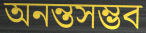
অনন্তসম্ভব